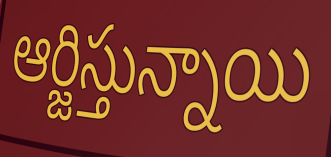
ఆర్జిస్తున్నాయి